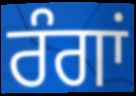
ਰੰਗਾਂ